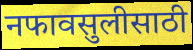
नफावसुलीसाठी